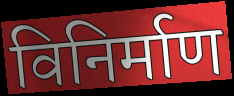
विनिर्माण